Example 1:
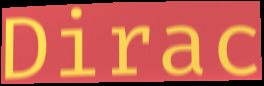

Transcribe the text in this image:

Dirac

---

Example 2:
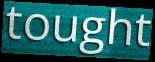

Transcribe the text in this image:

tought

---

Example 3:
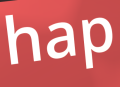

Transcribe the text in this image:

hap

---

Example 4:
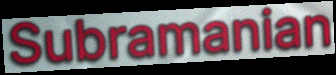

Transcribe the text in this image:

Subramanian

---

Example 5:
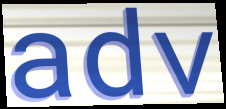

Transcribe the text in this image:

adv